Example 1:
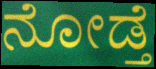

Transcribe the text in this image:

ನೋಡ್ತೆ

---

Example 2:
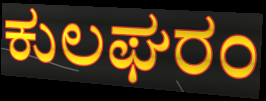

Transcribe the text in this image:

ಕುಲಘರಂ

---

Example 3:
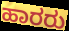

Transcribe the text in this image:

ಹಾರರು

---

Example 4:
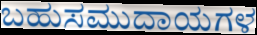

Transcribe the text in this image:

ಬಹುಸಮುದಾಯಗಳ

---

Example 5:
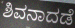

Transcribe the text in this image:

ಶಿವನಾದಡೆ